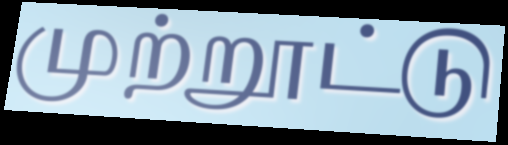
முற்றூட்டு